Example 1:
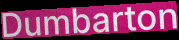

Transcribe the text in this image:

Dumbarton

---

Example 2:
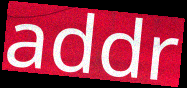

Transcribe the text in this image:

addr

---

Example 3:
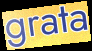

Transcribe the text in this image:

grata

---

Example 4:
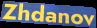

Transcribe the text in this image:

Zhdanov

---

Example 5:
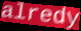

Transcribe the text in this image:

alredy